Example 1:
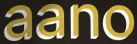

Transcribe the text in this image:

aano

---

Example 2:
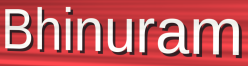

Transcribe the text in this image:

Bhinuram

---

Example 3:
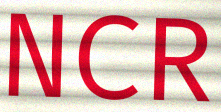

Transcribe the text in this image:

NCR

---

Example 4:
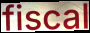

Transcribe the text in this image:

fiscal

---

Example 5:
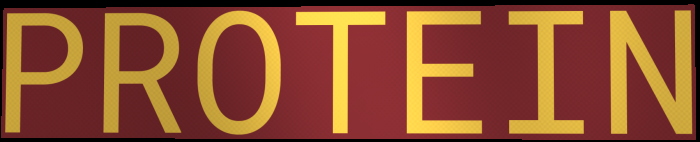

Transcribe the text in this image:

PROTEIN